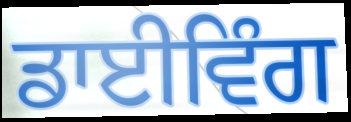
ਡਾਈਵਿੰਗ